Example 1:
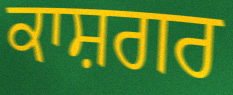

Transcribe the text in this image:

ਕਾਸ਼ਗਰ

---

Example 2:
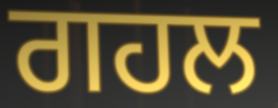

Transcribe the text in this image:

ਗਹਲ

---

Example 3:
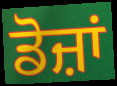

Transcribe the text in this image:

ਡੋਜ਼ਾਂ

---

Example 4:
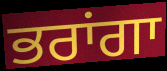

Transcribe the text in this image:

ਭਰਾਂਗਾ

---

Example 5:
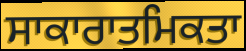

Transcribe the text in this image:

ਸਾਕਾਰਾਤਮਿਕਤਾ